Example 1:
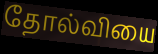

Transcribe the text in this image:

தோல்வியை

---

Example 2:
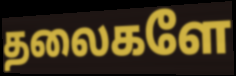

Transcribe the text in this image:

தலைகளே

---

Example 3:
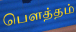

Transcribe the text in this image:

பௌத்தம்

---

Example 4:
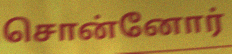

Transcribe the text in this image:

சொன்னோர்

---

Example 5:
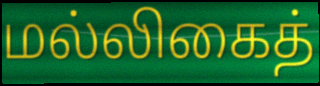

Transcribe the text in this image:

மல்லிகைத்